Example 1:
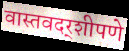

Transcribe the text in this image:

वास्तवदर्शीपणे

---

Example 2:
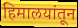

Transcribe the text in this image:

हिमालयांतून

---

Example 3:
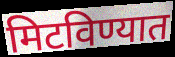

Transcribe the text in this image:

मिटविण्यात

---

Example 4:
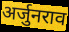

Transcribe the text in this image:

अर्जुनराव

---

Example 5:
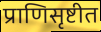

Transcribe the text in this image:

प्राणिसृष्टीत